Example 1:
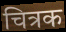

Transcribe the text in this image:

चित्रक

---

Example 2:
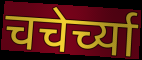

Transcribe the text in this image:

चचेर्च्या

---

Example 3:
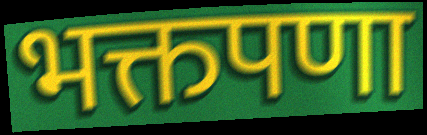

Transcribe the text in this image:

भक्तपणा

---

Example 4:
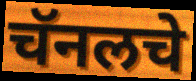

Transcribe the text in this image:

चॅनलचे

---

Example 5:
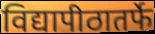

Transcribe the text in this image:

विद्यापीठातर्फे